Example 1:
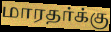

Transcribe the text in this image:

மாரதர்க்கு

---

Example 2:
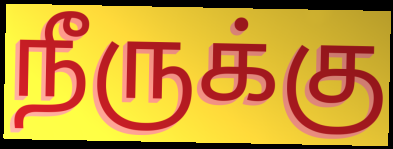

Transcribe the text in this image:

நீருக்கு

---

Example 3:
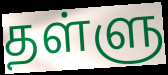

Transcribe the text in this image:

தள்ளு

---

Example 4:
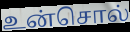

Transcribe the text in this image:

உன்சொல்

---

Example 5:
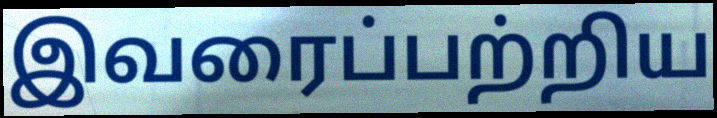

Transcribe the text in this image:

இவரைப்பற்றிய